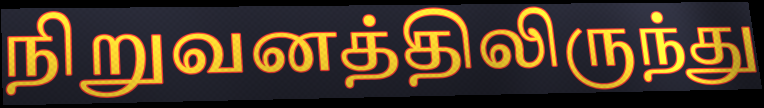
நிறுவனத்திலிருந்து